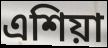
এশিয়া